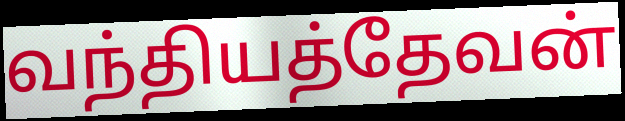
வந்தியத்தேவன்